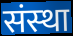
संस्‍था